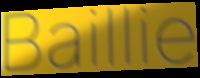
Baillie